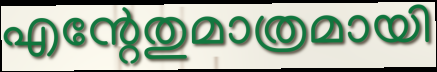
എന്റേതുമാത്രമായി